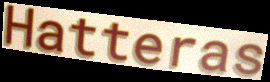
Hatteras